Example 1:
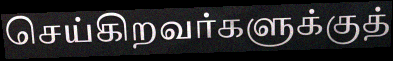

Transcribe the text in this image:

செய்கிறவர்களுக்குத்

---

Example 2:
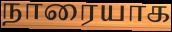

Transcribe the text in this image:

நாரையாக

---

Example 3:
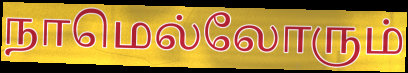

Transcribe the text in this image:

நாமெல்லோரும்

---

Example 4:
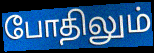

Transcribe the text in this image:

போதிலும்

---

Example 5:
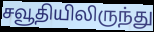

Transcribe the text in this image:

சவூதியிலிருந்து